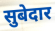
सुबेदार